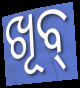
ଖୂବ୍